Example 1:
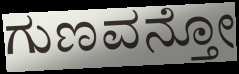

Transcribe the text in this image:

ಗುಣವನ್ತೋ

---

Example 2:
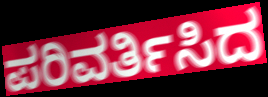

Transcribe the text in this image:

ಪರಿವರ್ತಿಸಿದ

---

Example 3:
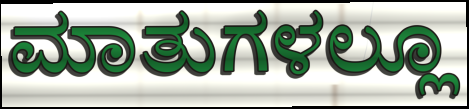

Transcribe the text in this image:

ಮಾತುಗಳಲ್ಲೂ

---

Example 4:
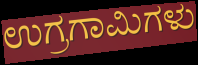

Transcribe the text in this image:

ಉಗ್ರಗಾಮಿಗಳು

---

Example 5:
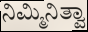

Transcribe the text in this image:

ನಿಮ್ಮಿನಿತ್ವಾ